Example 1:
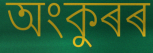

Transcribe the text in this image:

অংকুৰৰ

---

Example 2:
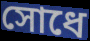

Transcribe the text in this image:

সোধে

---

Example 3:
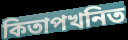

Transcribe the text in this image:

কিতাপখনিত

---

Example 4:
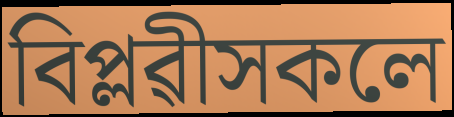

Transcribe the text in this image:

বিপ্লৱীসকলে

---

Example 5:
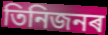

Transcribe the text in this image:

তিনিজনৰ